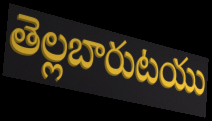
తెల్లబారుటయు